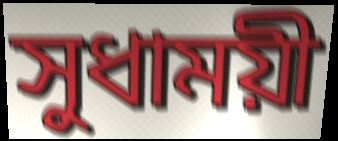
সুধাময়ী